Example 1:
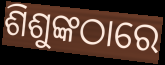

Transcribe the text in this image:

ଶିଶୁଙ୍କଠାରେ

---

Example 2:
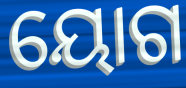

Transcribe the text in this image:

ୟୋଗ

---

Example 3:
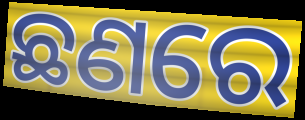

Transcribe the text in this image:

ଛଣରେ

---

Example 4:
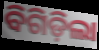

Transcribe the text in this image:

ବିଗିଡ଼ିଲା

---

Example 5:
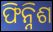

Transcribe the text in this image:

ଫିନ୍ନିଶ